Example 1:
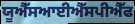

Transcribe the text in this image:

ਯੂਐੱਸਆਈਐੱਸਪੀਐੱਫ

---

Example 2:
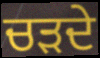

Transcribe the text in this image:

ਚੜਦੇ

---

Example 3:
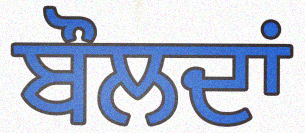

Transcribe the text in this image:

ਬੌਲਦਾਂ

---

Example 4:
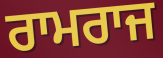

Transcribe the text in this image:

ਰਾਮਰਾਜ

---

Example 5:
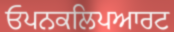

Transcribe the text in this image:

ਓਪਨਕਲਿਪਆਰਟ